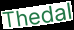
Thedal